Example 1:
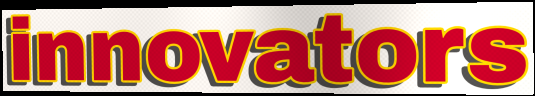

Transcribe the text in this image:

innovators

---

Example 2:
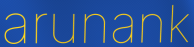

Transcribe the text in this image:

arunank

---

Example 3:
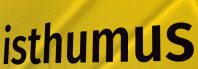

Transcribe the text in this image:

isthumus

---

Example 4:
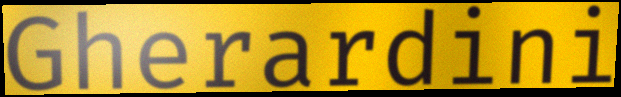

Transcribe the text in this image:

Gherardini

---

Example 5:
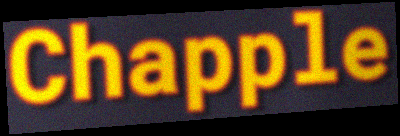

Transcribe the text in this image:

Chapple